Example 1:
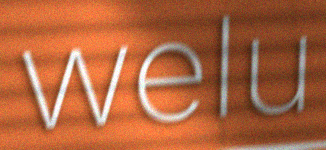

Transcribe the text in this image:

welu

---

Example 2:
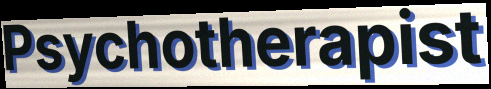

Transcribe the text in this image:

Psychotherapist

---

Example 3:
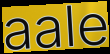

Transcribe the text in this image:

aale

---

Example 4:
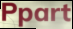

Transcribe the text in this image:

Ppart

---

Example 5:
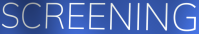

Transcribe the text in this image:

SCREENING